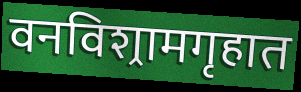
वनविश्रामगृहात